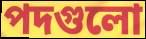
পদগুলো